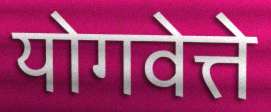
योगवेत्ते